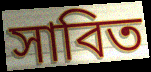
সাবিত